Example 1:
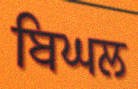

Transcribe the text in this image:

ਬਿਘਲ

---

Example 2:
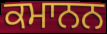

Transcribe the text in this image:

ਕਮਾਨਨ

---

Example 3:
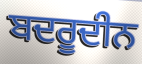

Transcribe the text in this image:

ਬਦਰੂਦੀਨ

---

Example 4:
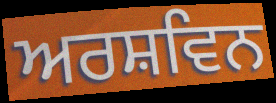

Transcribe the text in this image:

ਅਰਸ਼ਵਿਨ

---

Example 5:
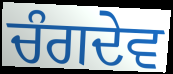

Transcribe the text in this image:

ਚੰਗਦੇਵ